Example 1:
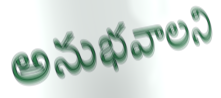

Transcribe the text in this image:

అనుభవాలని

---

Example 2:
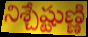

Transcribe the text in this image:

నిశ్చేష్టుణ్ణి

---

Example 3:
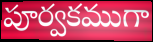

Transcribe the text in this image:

పూర్వకముగా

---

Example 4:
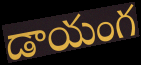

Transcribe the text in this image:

డాయంగ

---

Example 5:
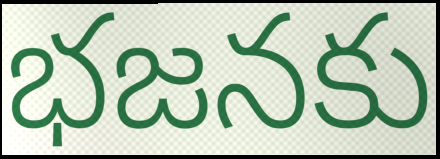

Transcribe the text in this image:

భజనకు